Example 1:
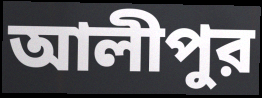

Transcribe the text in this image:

আলীপুর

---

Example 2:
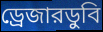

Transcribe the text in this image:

ড্রেজারডুবি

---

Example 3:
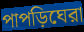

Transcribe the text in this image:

পাপড়িঘেরা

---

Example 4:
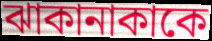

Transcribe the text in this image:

ঝাকানাকাকে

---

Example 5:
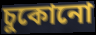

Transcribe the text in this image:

চুকোনো